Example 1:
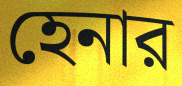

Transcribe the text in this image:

হেনার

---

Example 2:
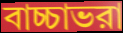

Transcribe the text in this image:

বাচ্চাভরা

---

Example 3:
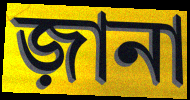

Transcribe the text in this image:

জ়ানা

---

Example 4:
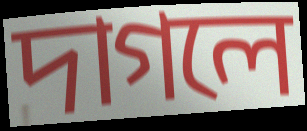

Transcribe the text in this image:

দাগলে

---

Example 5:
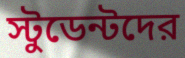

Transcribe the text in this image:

স্টুডেন্টদের